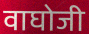
वाघोजी